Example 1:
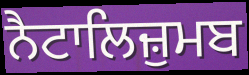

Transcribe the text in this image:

ਨੈਟਾਲਿਜ਼ੁਮਬ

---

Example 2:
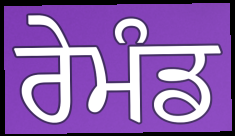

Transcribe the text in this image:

ਰੇਮੰਡ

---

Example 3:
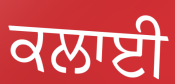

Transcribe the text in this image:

ਕਲਾਈ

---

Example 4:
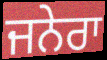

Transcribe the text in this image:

ਜਨੇਰਾ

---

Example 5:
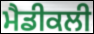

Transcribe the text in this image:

ਮੈਡੀਕਲੀ